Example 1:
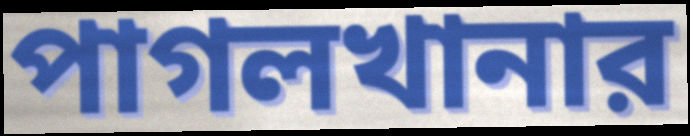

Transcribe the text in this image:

পাগলখানার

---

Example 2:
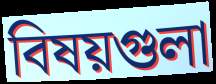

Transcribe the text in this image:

বিষয়গুলা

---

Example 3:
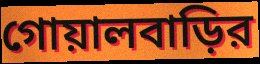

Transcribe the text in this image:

গোয়ালবাড়ির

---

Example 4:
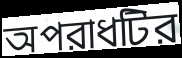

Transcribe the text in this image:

অপরাধটির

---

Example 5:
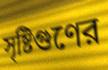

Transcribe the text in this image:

সৃষ্টিগুণের